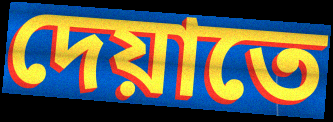
দেয়াতে